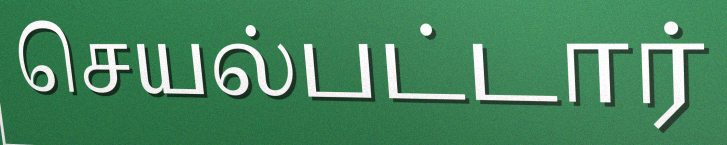
செயல்பட்டார்